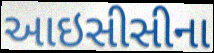
આઇસીસીના